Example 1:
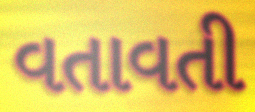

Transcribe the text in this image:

વતાવતી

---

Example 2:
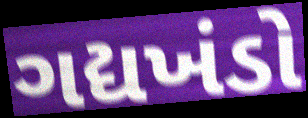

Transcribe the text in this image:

ગદ્યખંડો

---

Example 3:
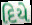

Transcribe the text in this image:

દિયે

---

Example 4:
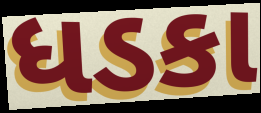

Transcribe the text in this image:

ધડકા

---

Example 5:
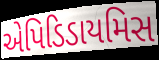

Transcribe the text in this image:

એપિડિડાયમિસ